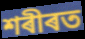
শৰীৰত